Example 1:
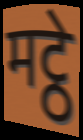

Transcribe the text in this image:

मट्ठे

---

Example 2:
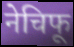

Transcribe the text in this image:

नेचिफू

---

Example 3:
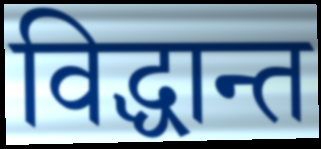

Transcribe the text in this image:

विद्धान्त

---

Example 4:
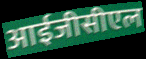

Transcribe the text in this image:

आईजीसीएल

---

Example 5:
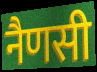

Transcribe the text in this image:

नैणसी